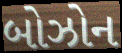
બોઝોન